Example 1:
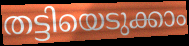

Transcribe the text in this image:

തട്ടിയെടുക്കാം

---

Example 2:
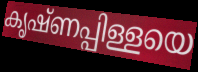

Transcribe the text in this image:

കൃഷ്ണപ്പിള്ളയെ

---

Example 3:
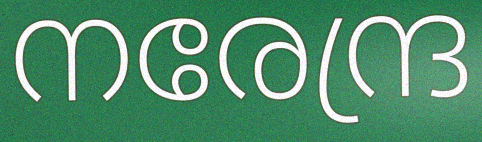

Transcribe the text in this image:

നരേന്ദ്ര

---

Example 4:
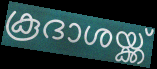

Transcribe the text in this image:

കൂദാശയ്ക്ക്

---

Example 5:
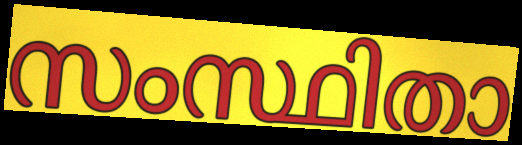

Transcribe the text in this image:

സംസ്ഥിതാ